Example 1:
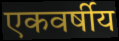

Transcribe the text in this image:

एकवर्षीय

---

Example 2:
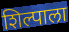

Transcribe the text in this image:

शिल्पाला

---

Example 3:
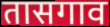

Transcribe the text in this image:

तासगाव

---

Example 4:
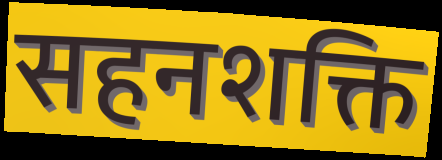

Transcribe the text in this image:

सहनशक्ति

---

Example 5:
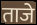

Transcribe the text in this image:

ताजे